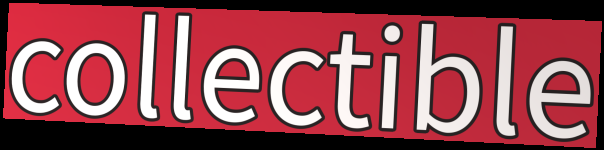
collectible